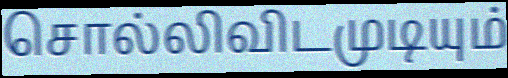
சொல்லிவிடமுடியும்